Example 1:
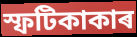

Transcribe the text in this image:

স্ফটিকাকাৰ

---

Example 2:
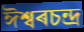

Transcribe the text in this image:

ঈশ্বৰচন্দ্ৰ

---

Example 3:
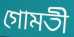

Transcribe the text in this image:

গোমতী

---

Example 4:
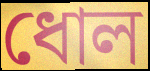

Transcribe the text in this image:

ধোল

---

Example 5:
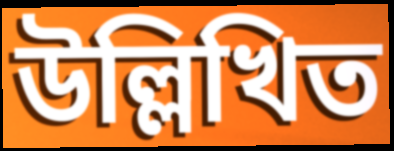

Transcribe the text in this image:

উল্লিখিত